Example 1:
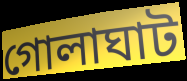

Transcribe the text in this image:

গোলাঘাট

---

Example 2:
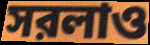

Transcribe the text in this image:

সরলাও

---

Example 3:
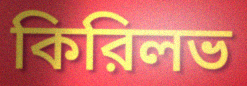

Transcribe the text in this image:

কিরিলভ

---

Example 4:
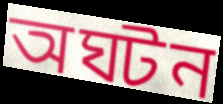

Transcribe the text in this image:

অঘটন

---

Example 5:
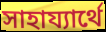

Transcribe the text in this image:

সাহায্যার্থে